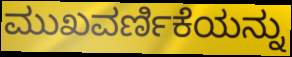
ಮುಖವರ್ಣಿಕೆಯನ್ನು